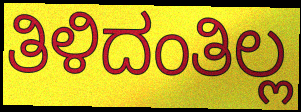
ತಿಳಿದಂತಿಲ್ಲ